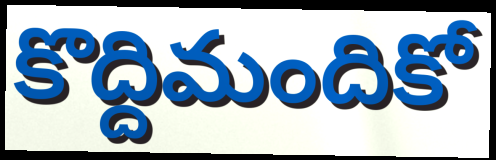
కొద్దిమందికో